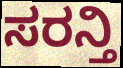
ಸರನ್ತಿ